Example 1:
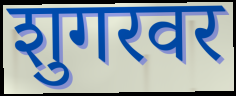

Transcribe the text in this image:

शुगरवर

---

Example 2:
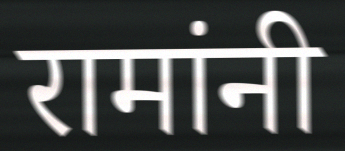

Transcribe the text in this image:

रामांनी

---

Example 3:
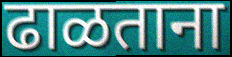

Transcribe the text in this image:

ढाळताना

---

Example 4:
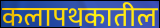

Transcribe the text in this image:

कलापथकातील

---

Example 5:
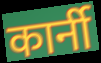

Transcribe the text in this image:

कार्नी